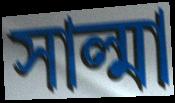
সাল্মা